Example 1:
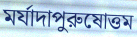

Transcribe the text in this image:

মর্যাদাপুরুষোত্তম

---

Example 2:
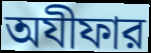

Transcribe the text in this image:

অযীফার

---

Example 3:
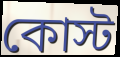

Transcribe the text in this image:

কোস্ট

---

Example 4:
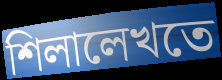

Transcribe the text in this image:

শিলালেখতে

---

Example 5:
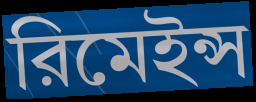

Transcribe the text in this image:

রিমেইন্স